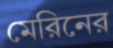
মেরিনের